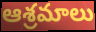
ఆశ్రమాలు